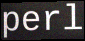
perl